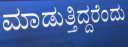
ಮಾಡುತ್ತಿದ್ದರೆಂದು